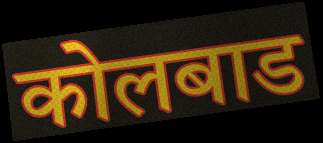
कोलबाड